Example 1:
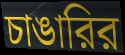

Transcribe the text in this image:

চাঙারির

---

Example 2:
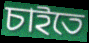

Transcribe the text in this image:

চাইতে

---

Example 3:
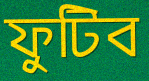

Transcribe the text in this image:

ফুটিব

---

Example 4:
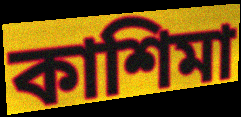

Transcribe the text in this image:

কাশিমা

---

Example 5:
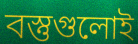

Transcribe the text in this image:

বস্তুগুলোই